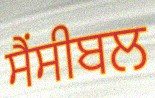
ਸੈਂਸੀਬਲ